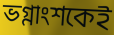
ভগ্নাংশকেই